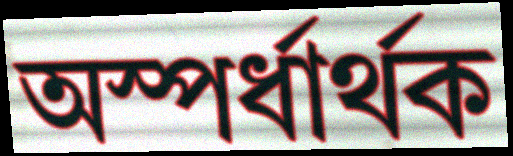
অস্পৰ্ধাৰ্থক